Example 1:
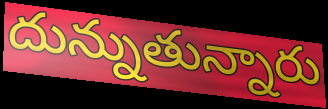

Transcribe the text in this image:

దున్నుతున్నారు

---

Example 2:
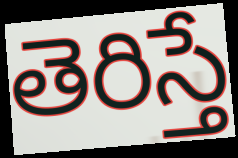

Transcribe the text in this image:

తెరిస్తే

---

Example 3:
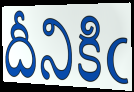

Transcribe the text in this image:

దీనికిఁ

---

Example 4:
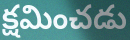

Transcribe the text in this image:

క్షమించడు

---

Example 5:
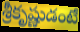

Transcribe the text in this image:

శ్రీకృష్ణుడంటే